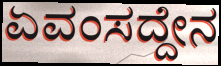
ಏವಂಸದ್ದೇನ